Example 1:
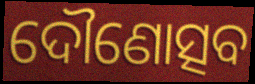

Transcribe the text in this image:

ଦୌଣୋତ୍ସବ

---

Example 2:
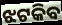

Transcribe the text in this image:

ଝଟକିବ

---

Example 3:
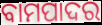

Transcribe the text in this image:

ବାମପାଦର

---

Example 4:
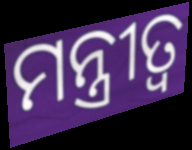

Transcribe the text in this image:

ମନ୍ତ୍ରୀତ୍ୱ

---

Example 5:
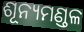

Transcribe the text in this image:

ଶୂନ୍ୟମଣ୍ଡଳ